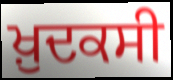
ਖ਼ੁਦਕਸੀ